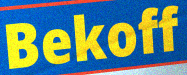
Bekoff